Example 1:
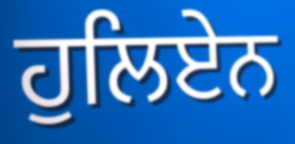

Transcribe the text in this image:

ਹੁਲਿਏਨ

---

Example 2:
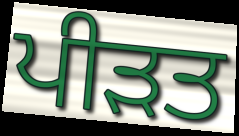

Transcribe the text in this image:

ਪੀਡ਼ਤ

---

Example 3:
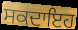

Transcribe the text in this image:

ਸਕਦਾਇਹ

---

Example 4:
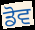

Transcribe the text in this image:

ਡੋਵ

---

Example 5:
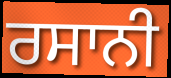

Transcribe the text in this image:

ਰਸਾਨੀ